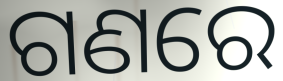
ଗଣରେ